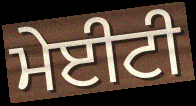
ਮੇਈਟੀ